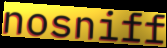
nosniff